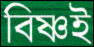
বিষ্ণই